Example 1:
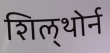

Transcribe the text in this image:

शिल्थोर्न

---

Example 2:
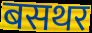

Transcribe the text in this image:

बसथर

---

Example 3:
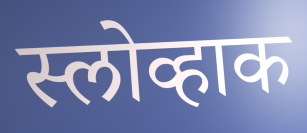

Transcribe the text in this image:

स्लोव्हाक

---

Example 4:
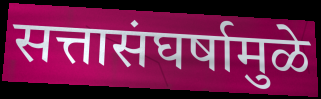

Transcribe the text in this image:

सत्तासंघर्षामुळे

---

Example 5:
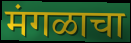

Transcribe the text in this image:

मंगळाचा